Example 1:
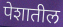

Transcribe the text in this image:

पेशातील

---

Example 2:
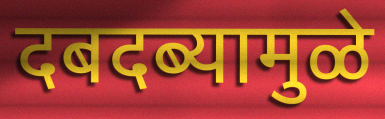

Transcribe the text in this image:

दबदब्यामुळे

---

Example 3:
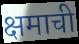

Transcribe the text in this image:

क्षमाची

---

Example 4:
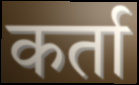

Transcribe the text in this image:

कर्ता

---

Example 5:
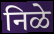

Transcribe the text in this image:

निळे